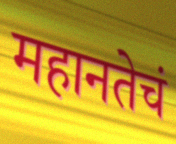
महानतेचं